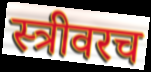
स्त्रीवरच